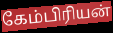
கேம்பிரியன்